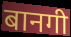
बानगी